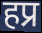
हप्र